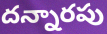
దన్నారపు